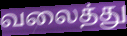
வலைத்து